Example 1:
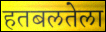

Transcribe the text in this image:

हतबलतेला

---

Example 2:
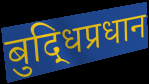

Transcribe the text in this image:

बुद्धिप्रधान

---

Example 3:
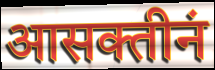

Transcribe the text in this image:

आसक्तीनं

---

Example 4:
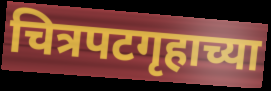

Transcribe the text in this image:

चित्रपटगृहाच्या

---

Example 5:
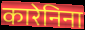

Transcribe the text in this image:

कारेनिना